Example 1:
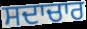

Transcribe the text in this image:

ਸਦਾਚਾਰ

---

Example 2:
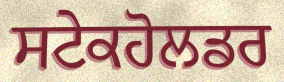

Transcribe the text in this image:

ਸਟੇਕਹੋਲਡਰ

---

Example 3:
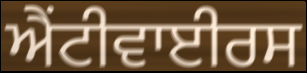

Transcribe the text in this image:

ਐਂਟੀਵਾਈਰਸ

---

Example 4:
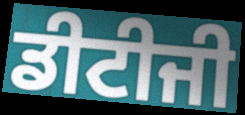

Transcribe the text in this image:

ਡੀਟੀਜੀ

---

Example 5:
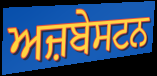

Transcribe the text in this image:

ਅਜ਼ਬੇਸਟਨ